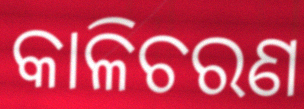
କାଳିଚରଣ